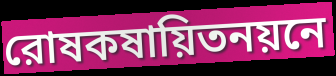
রোষকষায়িতনয়নে